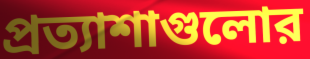
প্রত্যাশাগুলোর